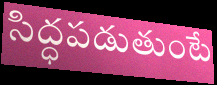
సిద్ధపడుతుంటే